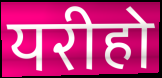
यरीहो